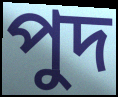
পুদ